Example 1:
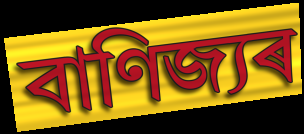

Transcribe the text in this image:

বাণিজ্যৰ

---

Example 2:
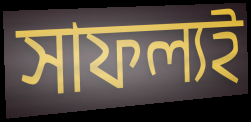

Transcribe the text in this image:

সাফল্যই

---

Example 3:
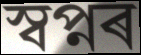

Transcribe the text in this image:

স্বপ্নৰ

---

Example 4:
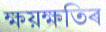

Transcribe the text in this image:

ক্ষয়ক্ষতিৰ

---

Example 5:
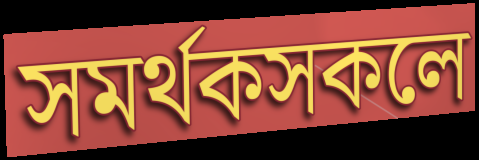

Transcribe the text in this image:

সমৰ্থকসকলে